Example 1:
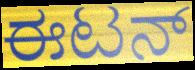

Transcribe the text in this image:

ಈಟನ್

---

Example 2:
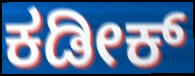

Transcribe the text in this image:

ಕಡೀಕ್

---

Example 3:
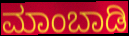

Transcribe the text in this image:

ಮಾಂಬಾಡಿ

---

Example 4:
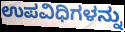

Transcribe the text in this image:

ಉಪವಿಧಿಗಳನ್ನು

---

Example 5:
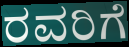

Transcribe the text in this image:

ರವರಿಗೆ